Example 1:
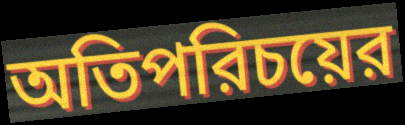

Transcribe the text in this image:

অতিপরিচয়ের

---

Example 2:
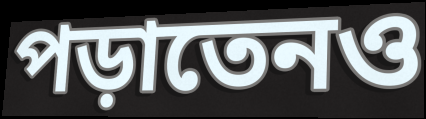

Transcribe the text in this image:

পড়াতেনও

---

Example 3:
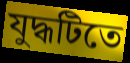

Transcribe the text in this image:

যুদ্ধটিতে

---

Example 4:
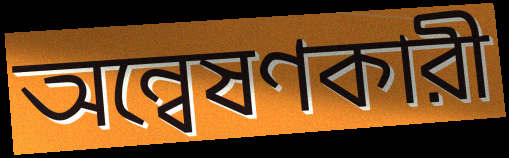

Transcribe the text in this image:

অন্বেষণকারী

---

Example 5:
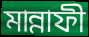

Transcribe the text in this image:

মান্নাফী